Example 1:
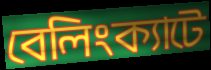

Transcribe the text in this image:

বেলিংক্যাটে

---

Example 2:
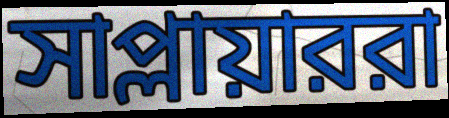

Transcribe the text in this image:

সাপ্লায়াররা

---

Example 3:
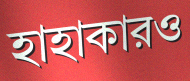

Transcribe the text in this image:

হাহাকারও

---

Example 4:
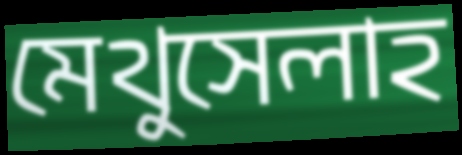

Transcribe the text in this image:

মেথুসেলাহ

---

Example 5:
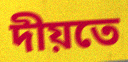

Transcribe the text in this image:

দীয়তে